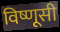
विष्णूसी